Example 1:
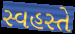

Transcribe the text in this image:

સ્વહસ્તે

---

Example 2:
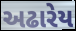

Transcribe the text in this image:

અઢારેય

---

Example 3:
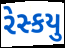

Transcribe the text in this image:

રેસ્કયુ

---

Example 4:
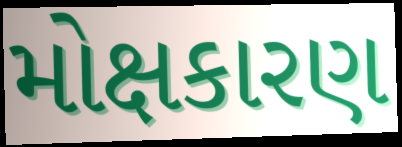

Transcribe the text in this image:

મોક્ષકારણ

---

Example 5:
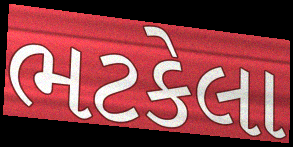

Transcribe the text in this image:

ભટકેલા